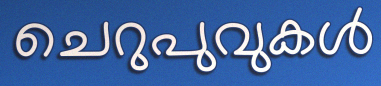
ചെറുപുവുകൾ